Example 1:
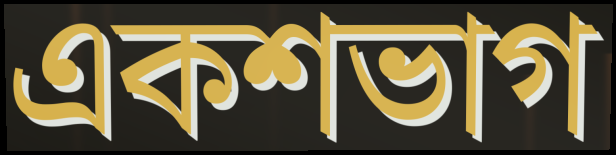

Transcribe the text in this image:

একশভাগ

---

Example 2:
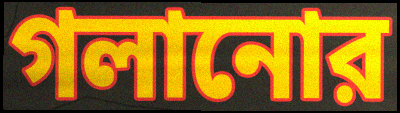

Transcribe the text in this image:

গলানোর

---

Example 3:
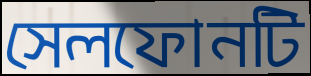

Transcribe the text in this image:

সেলফোনটি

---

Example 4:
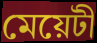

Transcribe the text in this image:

মেয়েটী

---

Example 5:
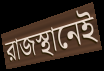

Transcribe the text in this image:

রাজস্থানেই